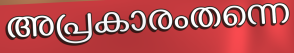
അപ്രകാരംതന്നെ